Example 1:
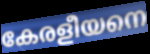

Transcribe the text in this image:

കേരളീയനെ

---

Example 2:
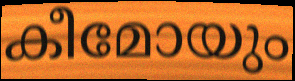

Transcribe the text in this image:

കീമോയും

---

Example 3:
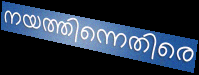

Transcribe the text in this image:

നയത്തിന്നെതിരെ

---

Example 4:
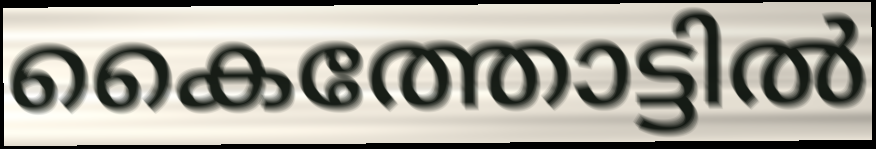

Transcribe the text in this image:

കൈത്തോട്ടിൽ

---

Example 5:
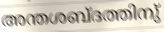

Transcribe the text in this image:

അന്തശബ്ദത്തിനു്